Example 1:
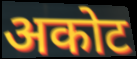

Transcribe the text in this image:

अकोट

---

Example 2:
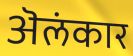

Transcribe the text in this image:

ऄलंकार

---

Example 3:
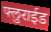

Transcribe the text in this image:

फ्लुराईड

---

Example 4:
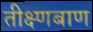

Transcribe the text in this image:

तीक्ष्णबाण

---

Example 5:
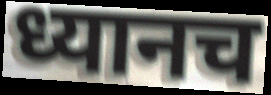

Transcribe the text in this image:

ध्यानच